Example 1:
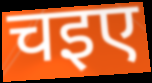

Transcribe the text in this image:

चइए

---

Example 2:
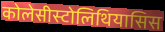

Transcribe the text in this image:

कोलेसीस्टोलिथियासिस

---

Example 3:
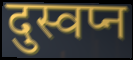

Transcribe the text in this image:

दुस्वप्न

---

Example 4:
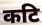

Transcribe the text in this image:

कटि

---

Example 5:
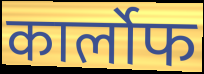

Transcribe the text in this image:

कार्लोफ